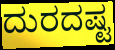
ದುರದಷ್ಟ